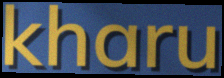
kharu